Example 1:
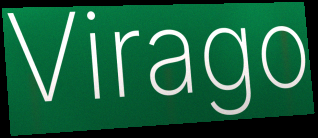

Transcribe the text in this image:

Virago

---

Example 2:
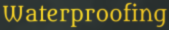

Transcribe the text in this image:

Waterproofing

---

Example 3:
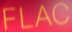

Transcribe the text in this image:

FLAC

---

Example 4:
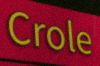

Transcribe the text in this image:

Crole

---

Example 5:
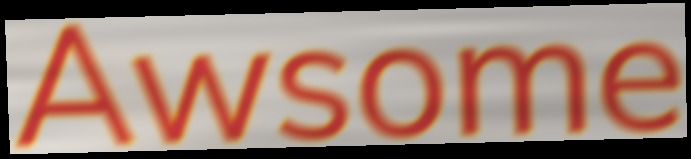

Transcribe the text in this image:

Awsome